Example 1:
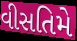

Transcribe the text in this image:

વીસતિમે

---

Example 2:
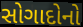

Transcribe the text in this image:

સોગાદોનો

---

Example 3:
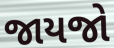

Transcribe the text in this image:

જાયજો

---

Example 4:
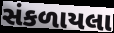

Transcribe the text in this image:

સંકળાયલા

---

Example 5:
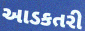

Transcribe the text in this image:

આડકતરી